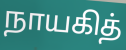
நாயகித்